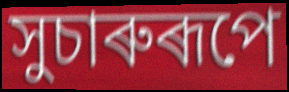
সুচাৰুৰূপে